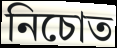
নিচোত